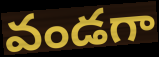
వండగా